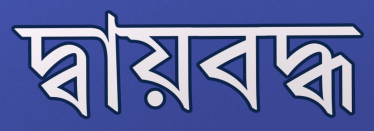
দ্বায়বদ্ধ